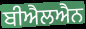
ਬੀਐਲਐਨ